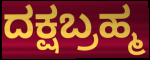
ದಕ್ಷಬ್ರಹ್ಮ